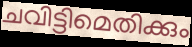
ചവിട്ടിമെതിക്കും